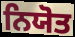
ਨਿਯੋਤ